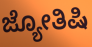
ಜ್ಯೋತಿಷಿ